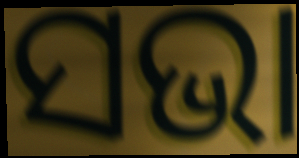
ସଭା